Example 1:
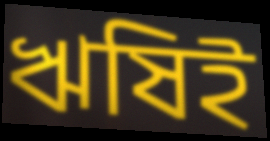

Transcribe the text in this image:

ঋষিই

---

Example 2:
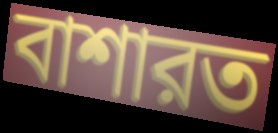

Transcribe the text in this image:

বাশারত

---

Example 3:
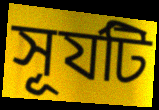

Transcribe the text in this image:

সূর্যটি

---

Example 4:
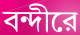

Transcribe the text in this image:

বন্দীরে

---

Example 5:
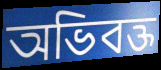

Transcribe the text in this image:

অভিবক্ত